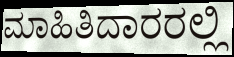
ಮಾಹಿತಿದಾರರಲ್ಲಿ